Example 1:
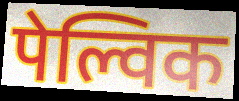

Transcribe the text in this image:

पेल्विक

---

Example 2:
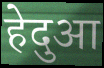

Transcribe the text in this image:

हेदुआ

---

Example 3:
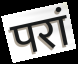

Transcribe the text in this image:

परां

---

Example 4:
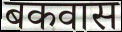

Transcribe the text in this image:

बकवास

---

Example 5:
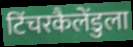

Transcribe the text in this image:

टिंचरकैलेंडुला